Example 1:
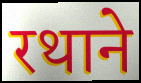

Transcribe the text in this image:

रथाने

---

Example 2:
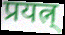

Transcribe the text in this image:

प्रयत्न्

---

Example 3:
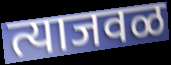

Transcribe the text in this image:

त्याजवळ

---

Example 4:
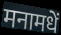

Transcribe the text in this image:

मनामधें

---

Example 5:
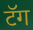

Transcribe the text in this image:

टॅग